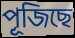
পূজিছে